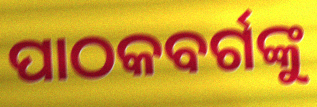
ପାଠକବର୍ଗଙ୍କୁ